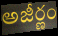
అజీర్ణం